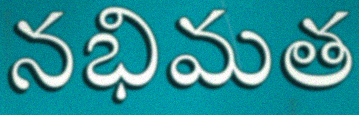
నభిమత